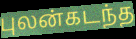
புலன்கடந்த